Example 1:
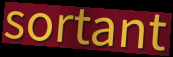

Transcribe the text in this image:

sortant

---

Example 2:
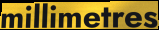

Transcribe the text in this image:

millimetres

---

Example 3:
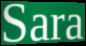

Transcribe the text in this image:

Sara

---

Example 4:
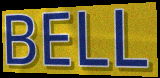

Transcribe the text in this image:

BELL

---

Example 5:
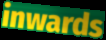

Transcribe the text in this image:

inwards